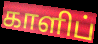
காளிப்